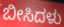
ಬೀಸಿದಳು